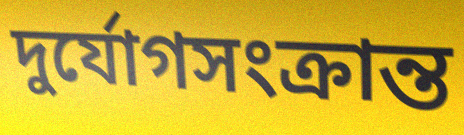
দুর্যোগসংক্রান্ত